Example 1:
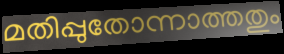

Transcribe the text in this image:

മതിപ്പുതോന്നാത്തതും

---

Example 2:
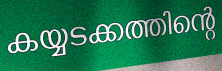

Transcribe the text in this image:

കയ്യടക്കത്തിന്റെ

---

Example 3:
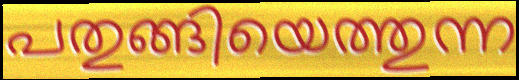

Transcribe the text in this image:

പതുങ്ങിയെത്തുന്ന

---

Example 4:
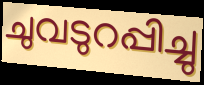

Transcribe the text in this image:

ചുവടുറപ്പിച്ചു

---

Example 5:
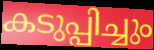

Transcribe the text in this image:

കടുപ്പിച്ചും